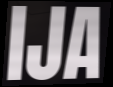
IJA